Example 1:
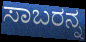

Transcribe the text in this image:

ಸಾಬರನ್ನ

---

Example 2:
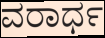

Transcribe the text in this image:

ವರಾರ್ಧ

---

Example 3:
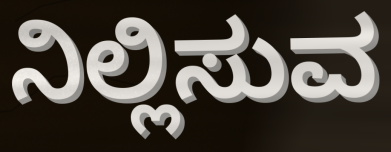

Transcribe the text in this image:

ನಿಲ್ಲಿಸುವ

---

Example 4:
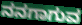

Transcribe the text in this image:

ನನಗಾಗುವ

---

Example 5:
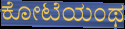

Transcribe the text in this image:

ಕೋಟೆಯಂಥ